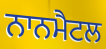
ਨਾਨਮੈਟਲ